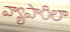
వ్యాపారిలా